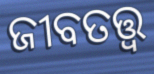
ଜୀବତତ୍ତ୍ୱ